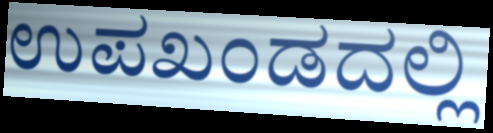
ಉಪಖಂಡದಲ್ಲಿ